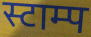
स्टाम्प